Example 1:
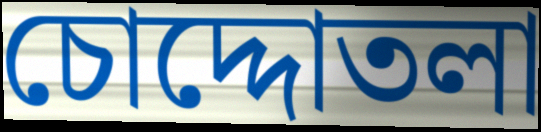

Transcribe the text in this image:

চোদ্দোতলা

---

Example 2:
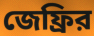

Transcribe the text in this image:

জেফ্রির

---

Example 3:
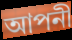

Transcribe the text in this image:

আপনী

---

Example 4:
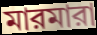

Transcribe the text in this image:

মারমারা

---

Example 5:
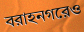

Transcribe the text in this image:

বরাহনগরেও